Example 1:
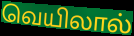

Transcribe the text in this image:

வெயிலால்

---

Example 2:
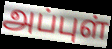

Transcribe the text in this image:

அப்புள்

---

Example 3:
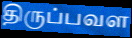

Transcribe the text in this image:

திருப்பவள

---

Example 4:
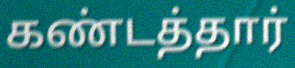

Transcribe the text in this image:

கண்டத்தார்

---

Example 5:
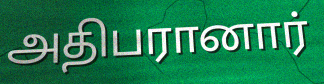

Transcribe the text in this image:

அதிபரானார்